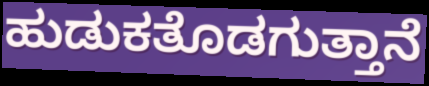
ಹುಡುಕತೊಡಗುತ್ತಾನೆ